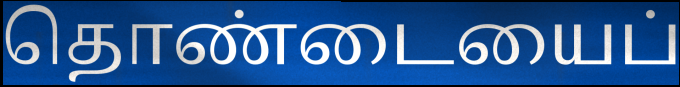
தொண்டையைப்